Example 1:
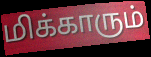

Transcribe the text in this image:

மிக்காரும்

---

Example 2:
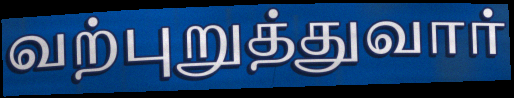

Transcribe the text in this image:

வற்புறுத்துவார்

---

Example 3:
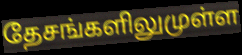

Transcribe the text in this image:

தேசங்களிலுமுள்ள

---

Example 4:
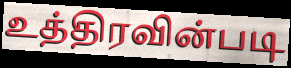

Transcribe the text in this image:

உத்திரவின்படி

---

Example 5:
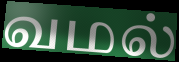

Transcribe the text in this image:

வமல்